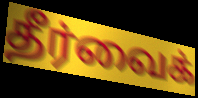
தீர்வைக்